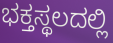
ಭಕ್ತಸ್ಥಲದಲ್ಲಿ